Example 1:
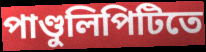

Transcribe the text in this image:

পাণ্ডুলিপিটিতে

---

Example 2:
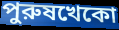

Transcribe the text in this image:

পুরুষখেকো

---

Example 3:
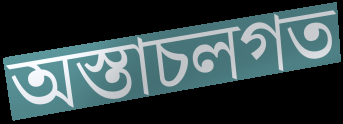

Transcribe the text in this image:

অস্তাচলগত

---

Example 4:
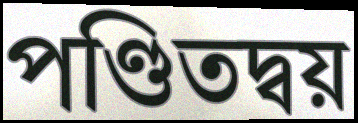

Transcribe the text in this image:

পণ্ডিতদ্বয়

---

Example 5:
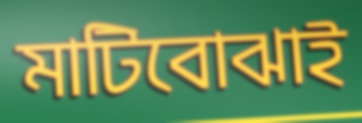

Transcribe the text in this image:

মাটিবোঝাই